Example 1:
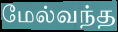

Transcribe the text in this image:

மேல்வந்த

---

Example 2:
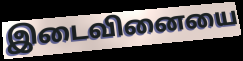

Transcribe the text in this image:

இடைவினையை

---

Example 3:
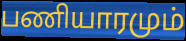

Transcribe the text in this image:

பணியாரமும்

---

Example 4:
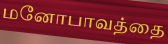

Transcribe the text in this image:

மனோபாவத்தை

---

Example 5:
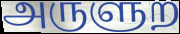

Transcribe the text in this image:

அருளுற